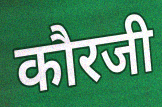
कौरजी